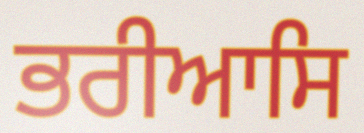
ਭਰੀਆਸਿ